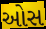
ઓસ